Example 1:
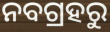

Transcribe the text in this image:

ନବଗ୍ରହରୁ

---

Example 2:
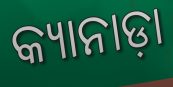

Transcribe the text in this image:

କ୍ୟାନାଡ଼ା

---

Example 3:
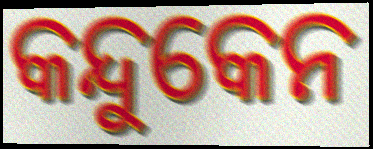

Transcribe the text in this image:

କନ୍ଦୁକେନ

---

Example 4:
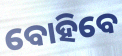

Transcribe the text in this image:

ବୋହିବେ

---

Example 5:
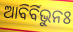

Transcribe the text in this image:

ଆବିର୍ବିଭୁନଃ